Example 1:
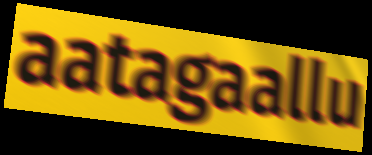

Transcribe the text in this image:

aatagaallu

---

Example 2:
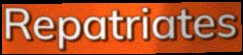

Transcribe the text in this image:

Repatriates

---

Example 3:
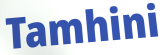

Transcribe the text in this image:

Tamhini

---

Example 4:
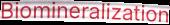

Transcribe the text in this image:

Biomineralization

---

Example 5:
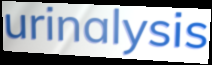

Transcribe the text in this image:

urinalysis